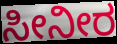
ಸೀನೀರ